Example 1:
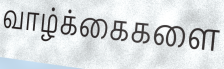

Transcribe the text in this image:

வாழ்க்கைகளை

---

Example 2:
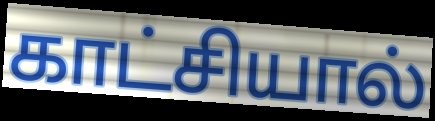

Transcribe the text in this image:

காட்சியால்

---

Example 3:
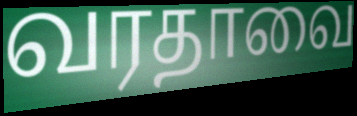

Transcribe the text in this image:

வரதாவை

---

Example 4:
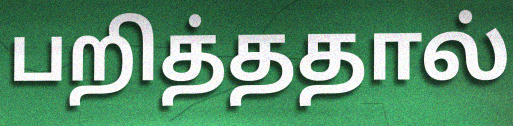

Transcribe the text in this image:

பறித்ததால்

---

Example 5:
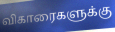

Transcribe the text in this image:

விகாரைகளுக்கு